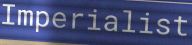
Imperialist